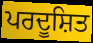
ਪਰਦੂਸ਼ਿਤ